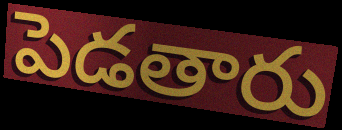
పెడతారు